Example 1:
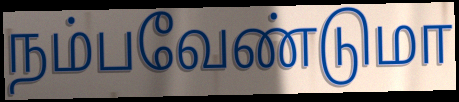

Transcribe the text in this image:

நம்பவேண்டுமா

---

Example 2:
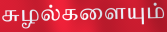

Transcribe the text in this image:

சுழல்களையும்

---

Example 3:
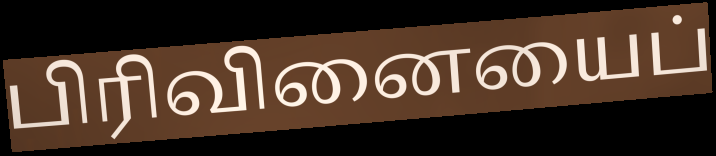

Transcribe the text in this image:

பிரிவினையைப்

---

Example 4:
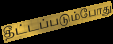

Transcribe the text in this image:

தீட்டப்படும்போது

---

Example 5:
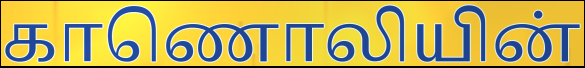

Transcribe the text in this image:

காணொலியின்